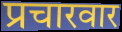
प्रचारवार